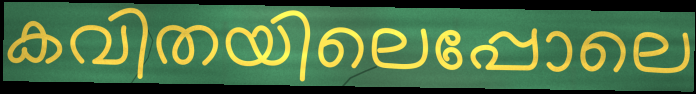
കവിതയിലെപ്പോലെ